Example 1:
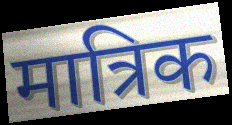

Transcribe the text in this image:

मात्रिक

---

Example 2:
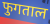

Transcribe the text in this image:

फुगताल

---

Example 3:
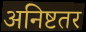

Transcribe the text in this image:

अनिष्टतर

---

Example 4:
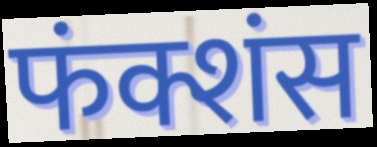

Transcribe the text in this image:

फंक्शंस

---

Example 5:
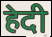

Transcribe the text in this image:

हेदी